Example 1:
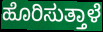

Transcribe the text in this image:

ಹೊರಿಸುತ್ತಾಳೆ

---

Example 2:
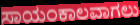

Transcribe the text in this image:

ಸಾಯಂಕಾಲವಾಗಲು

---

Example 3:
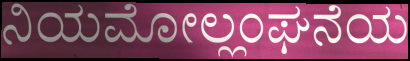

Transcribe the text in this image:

ನಿಯಮೋಲ್ಲಂಘನೆಯ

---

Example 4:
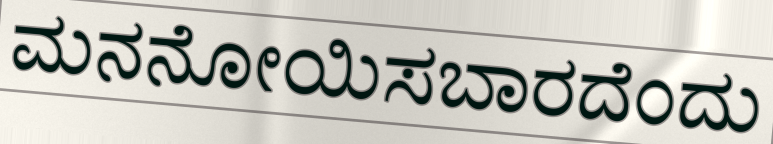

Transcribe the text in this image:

ಮನನೋಯಿಸಬಾರದೆಂದು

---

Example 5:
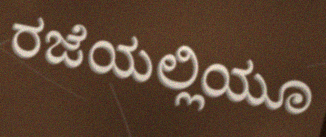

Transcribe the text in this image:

ರಜೆಯಲ್ಲಿಯೂ